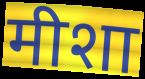
मीशा